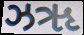
ઝૠ